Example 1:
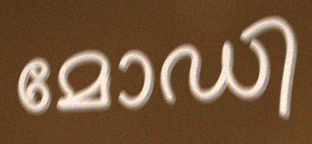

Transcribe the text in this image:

മോഡി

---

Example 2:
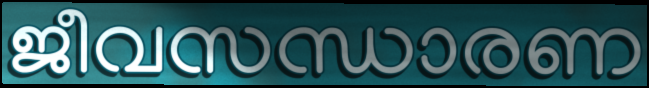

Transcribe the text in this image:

ജീവസന്ധാരണ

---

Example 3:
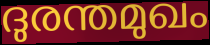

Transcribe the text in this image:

ദുരന്തമുഖം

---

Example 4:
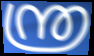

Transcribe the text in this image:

ന്ത്ര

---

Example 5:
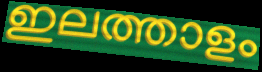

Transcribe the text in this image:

ഇലത്താളം